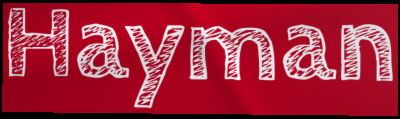
Hayman